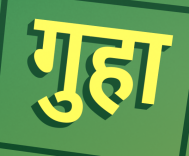
गुहा